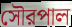
সৌরপাল